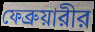
ফেব্রুয়ারীর